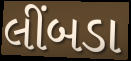
લીંબડા